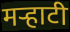
मर्‍हाटी